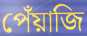
পেঁয়াজি